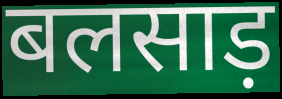
बलसाड़